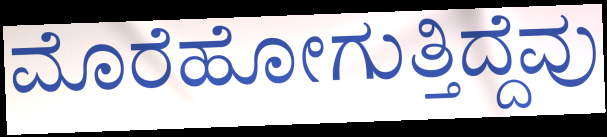
ಮೊರೆಹೋಗುತ್ತಿದ್ದೆವು